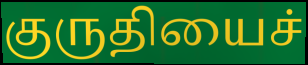
குருதியைச்